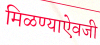
मिळण्याऐवजी